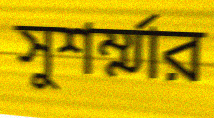
সুশর্ম্মার